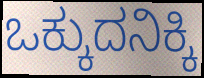
ಒಕ್ಕುದನಿಕ್ಕಿ